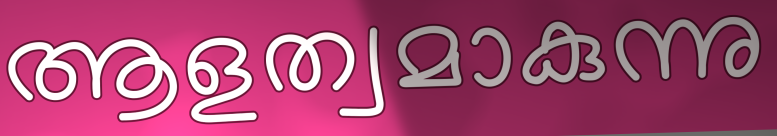
ആളത്വമാകുന്നു